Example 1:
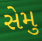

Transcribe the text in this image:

સેમુ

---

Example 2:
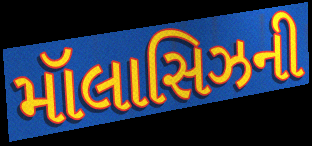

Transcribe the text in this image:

મૉલાસિઝની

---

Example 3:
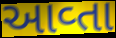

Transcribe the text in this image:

આવ્તા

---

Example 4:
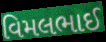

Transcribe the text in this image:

વિમલભાઈ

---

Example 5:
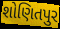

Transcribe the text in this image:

શોણિતપુર